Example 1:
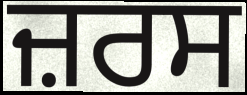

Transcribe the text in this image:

ਜ਼ਰਸ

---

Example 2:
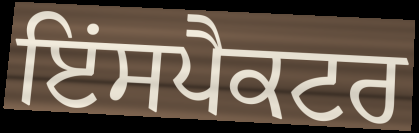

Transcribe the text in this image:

ਇਂਸਪੈਕਟਰ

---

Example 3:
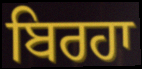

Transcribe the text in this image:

ਬਿਰਹਾ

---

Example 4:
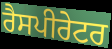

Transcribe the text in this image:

ਰੈਸਪੀਰੇਟਰ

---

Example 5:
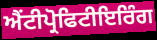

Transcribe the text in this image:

ਐਂਟੀਪ੍ਰੋਫਿਟੀਇਰਿੰਗ